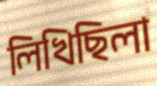
লিখিছিলা